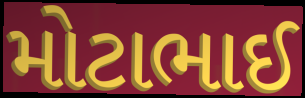
મોટાભાઈ